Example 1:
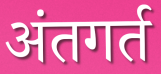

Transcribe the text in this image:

अंतगर्त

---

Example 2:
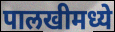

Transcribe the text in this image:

पालखीमध्ये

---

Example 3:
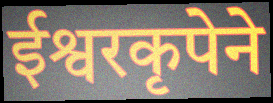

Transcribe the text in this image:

ईश्वरकृपेने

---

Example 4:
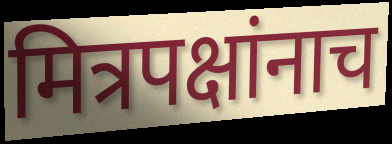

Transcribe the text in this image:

मित्रपक्षांनाच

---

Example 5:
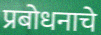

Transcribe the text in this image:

प्रबोधनाचे